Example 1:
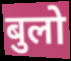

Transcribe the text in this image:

बुलो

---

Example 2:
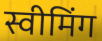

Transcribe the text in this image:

स्‍वीमिंग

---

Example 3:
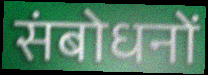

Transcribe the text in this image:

संबोधनों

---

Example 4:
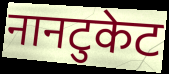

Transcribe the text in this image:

नानटुकेट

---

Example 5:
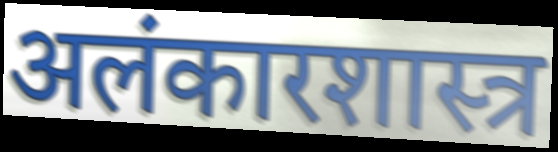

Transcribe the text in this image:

अलंकारशास्त्र